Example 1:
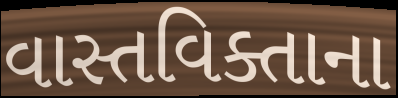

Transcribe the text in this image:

વાસ્તવિક્તાના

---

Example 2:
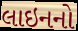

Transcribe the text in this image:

લાઇનનો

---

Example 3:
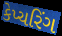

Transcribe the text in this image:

કેપ્ચરિંગ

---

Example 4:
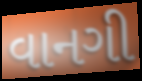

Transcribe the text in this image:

વાનગી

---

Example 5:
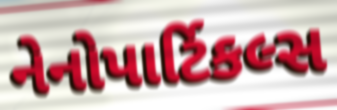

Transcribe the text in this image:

નેનોપાર્ટિકલ્સ